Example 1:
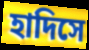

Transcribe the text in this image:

হাদিসে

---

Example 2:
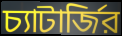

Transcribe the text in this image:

চ্যাটার্জির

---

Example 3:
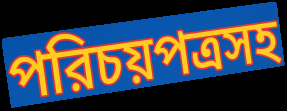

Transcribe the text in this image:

পরিচয়পত্রসহ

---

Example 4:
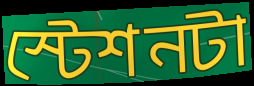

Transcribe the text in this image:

স্টেশনটা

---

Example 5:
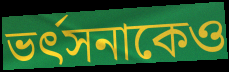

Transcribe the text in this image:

ভর্ৎসনাকেও